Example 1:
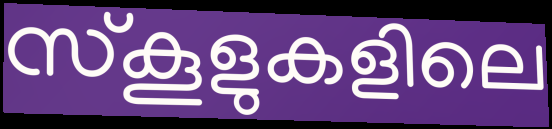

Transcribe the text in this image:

സ്കൂളുകളിലെ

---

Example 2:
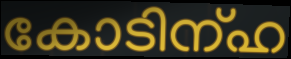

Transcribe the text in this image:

കോടിന്ഹ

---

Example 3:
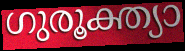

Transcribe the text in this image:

ഗുരൂക്ത്യാ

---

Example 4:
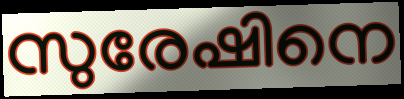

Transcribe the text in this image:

സുരേഷിനെ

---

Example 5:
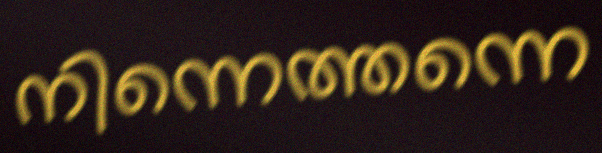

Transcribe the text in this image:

നിന്നെത്തന്നെ